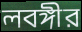
লবঙ্গীর